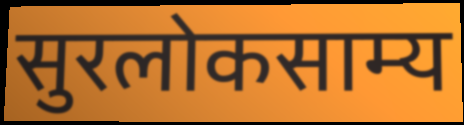
सुरलोकसाम्य